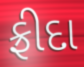
ફ્રીદા